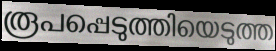
രൂപപ്പെടുത്തിയെടുത്ത